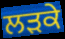
ਲੜਕੇ